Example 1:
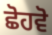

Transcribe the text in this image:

ਛੋਹਵੋ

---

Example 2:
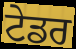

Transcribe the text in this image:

ਟੇਡਰ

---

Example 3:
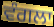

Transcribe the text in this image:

ਵੰਗਲਾ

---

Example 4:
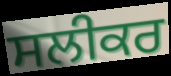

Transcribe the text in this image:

ਸਲੀਕਰ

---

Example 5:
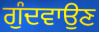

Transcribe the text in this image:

ਗੁੰਦਵਾਉਣ